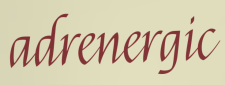
adrenergic